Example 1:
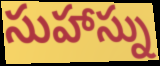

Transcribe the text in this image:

సుహాస్ను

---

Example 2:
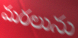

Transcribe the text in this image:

మరలును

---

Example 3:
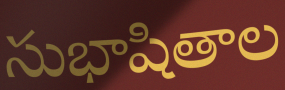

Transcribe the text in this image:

సుభాషితాల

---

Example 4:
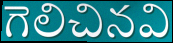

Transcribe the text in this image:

గెలిచినవి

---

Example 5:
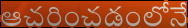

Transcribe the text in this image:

ఆచరించడంలోనే